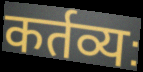
कर्तव्यः